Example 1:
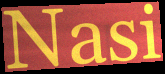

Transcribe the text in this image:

Nasi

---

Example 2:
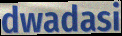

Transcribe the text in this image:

dwadasi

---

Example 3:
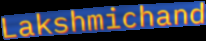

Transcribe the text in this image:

Lakshmichand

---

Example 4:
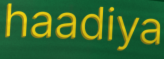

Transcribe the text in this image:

haadiya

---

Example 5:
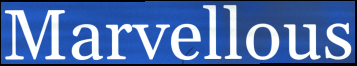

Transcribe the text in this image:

Marvellous